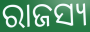
ରାଜସ୍ୟ